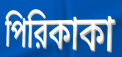
পিরিকাকা